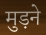
मुड़ने